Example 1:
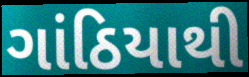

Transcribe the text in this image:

ગાંઠિયાથી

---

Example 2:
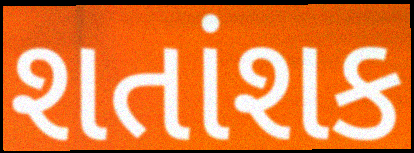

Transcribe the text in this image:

શતાંશક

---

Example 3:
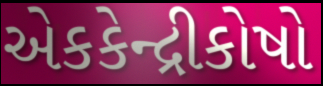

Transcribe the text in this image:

એકકેન્દ્રીકોષો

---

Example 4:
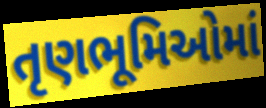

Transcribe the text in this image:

તૃણભૂમિઓમાં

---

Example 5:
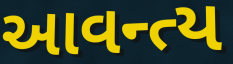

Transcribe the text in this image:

આવન્ત્ય